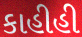
કાહીહી